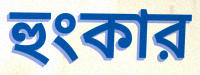
হুংকার